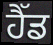
ਹੈੱਡ